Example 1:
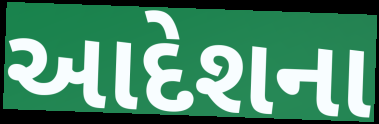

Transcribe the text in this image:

આદેશના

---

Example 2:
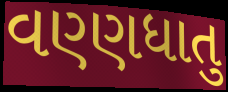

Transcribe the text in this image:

વણ્ણધાતુ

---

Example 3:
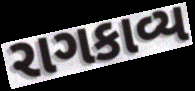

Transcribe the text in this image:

રાગકાવ્ય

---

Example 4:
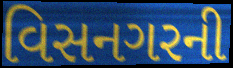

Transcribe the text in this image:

વિસનગરની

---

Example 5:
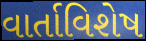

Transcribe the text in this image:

વાર્તાવિશેષ